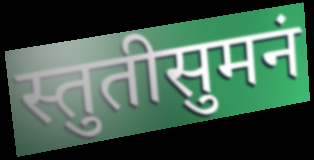
स्तुतीसुमनं